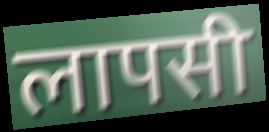
लापसी